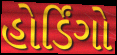
હોર્ડિંગો